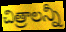
చిత్రాలన్నీ